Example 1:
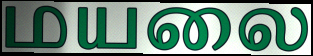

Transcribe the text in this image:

மயலை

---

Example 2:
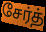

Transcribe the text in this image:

சேர்த்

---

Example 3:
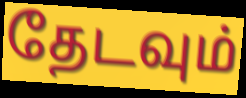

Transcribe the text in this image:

தேடவும்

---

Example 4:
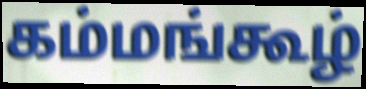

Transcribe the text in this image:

கம்மங்கூழ்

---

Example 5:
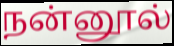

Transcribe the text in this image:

நன்னூல்